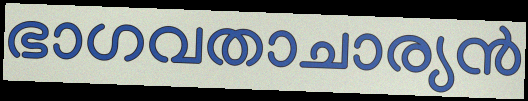
ഭാഗവതാചാര്യൻ